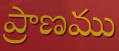
ప్రాణము